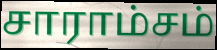
சாராம்சம்